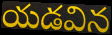
యడవిన